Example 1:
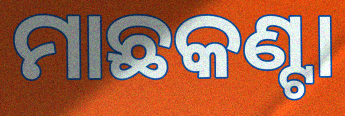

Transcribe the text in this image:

ମାଛକଣ୍ଟା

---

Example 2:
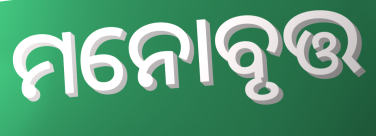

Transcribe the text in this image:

ମନୋବୃତ୍ତ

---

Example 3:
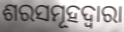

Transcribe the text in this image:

ଶରସମୂହଦ୍ୱାରା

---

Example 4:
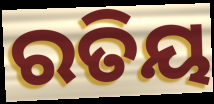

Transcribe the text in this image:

ରତିୟ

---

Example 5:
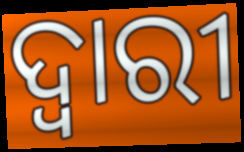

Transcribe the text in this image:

ଦ୍ଵାରୀ